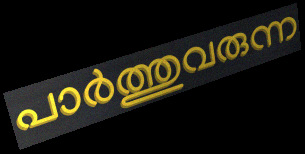
പാർത്തുവരുന്ന